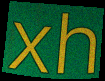
xh